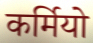
कर्मियो